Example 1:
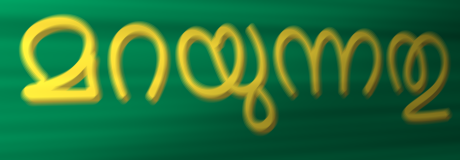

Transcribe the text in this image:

മറയുന്നതു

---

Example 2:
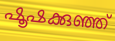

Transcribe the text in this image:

ഷൂഷക്കുഞ്ഞ്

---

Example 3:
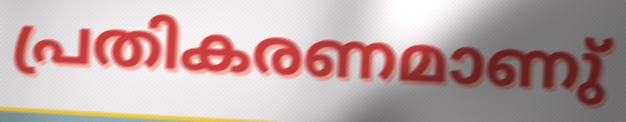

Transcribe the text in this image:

പ്രതികരണമാണു്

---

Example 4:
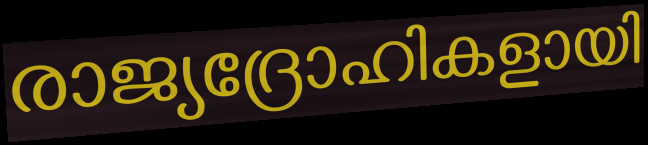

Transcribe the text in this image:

രാജ്യദ്രോഹികളായി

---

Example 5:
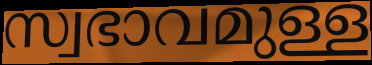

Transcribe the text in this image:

സ്വഭാവമുള്ള